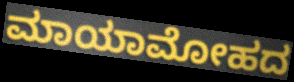
ಮಾಯಾಮೋಹದ